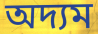
অদ্যম